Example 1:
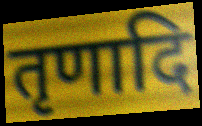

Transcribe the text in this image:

तृणादि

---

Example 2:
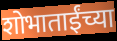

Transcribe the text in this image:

शोभाताईंच्या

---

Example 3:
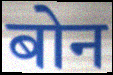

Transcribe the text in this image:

बोन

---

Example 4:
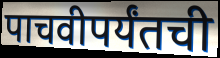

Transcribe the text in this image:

पाचवीपर्यंतची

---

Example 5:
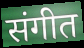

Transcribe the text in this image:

संगीत